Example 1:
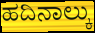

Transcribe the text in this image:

ಹದಿನಾಲ್ಕು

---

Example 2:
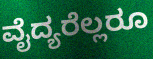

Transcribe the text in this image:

ವೈದ್ಯರೆಲ್ಲರೂ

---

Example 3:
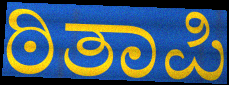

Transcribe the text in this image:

ಠಿತಾಪಿ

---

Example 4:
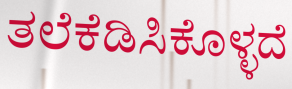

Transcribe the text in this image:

ತಲೆಕೆಡಿಸಿಕೊಳ್ಳದೆ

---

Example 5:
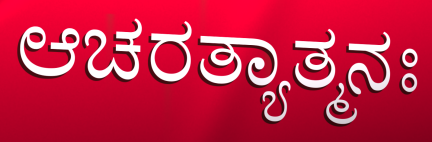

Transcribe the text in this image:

ಆಚರತ್ಯಾತ್ಮನಃ